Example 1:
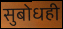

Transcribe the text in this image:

सुबोधही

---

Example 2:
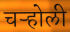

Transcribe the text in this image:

चऱ्होली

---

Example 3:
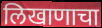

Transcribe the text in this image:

लिखाणाचा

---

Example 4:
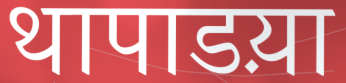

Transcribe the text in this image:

थापाडय़ा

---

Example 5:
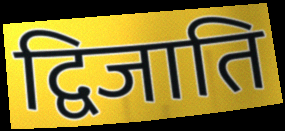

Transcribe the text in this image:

द्विजाति